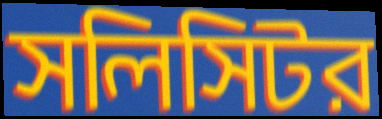
সলিসিটর